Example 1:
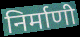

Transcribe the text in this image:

निर्माणी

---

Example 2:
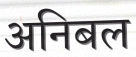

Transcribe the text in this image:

अनिबल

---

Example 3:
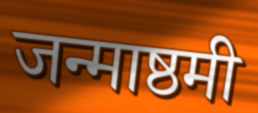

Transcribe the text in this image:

जन्माष्ठमी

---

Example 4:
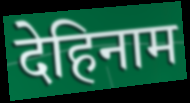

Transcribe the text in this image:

देहिनाम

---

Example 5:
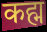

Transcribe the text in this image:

कह्म